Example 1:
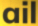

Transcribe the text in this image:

ail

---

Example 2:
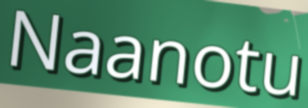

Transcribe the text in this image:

Naanotu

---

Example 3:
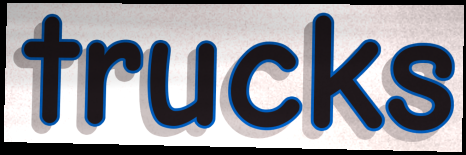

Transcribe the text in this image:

trucks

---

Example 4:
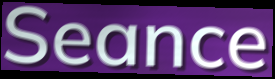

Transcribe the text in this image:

Seance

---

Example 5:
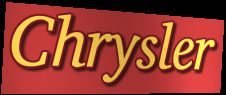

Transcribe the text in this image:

Chrysler